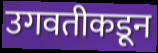
उगवतीकडून